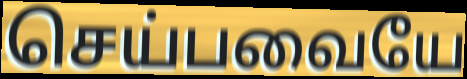
செய்பவையே